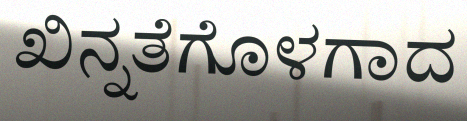
ಖಿನ್ನತೆಗೊಳಗಾದ